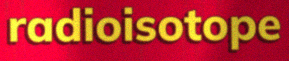
radioisotope